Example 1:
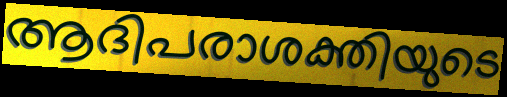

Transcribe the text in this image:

ആദിപരാശക്തിയുടെ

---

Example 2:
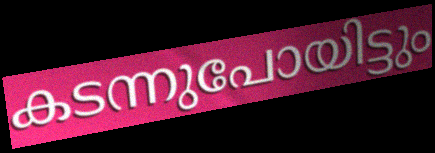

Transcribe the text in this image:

കടന്നുപോയിട്ടും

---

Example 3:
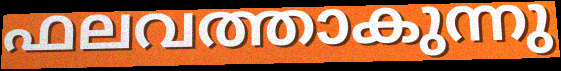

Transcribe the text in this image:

ഫലവത്താകുന്നു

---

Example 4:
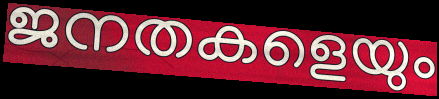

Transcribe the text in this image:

ജനതകളെയും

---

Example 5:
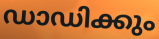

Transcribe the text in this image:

ഡാഡിക്കും